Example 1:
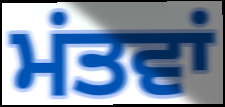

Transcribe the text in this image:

ਮਂਤਵਾਂ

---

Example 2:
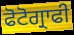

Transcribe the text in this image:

ਫੋਟੋਗ੍ਰਾਫੀ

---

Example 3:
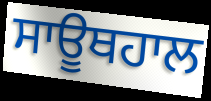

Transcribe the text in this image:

ਸਾਊਥਹਾਲ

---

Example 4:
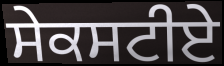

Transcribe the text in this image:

ਸੇਕਸਟੀਏ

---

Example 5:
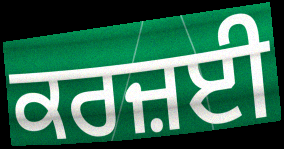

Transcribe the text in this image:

ਕਰਜ਼ਈ